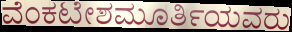
ವೆಂಕಟೇಶಮೂರ್ತಿಯವರು